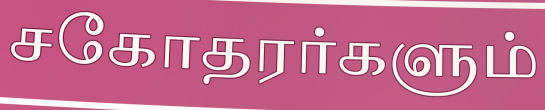
சகோதரர்களும்